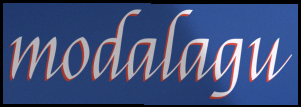
modalagu